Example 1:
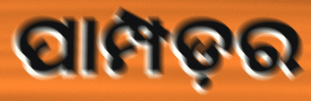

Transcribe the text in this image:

ପାମ୍ପଡ଼ର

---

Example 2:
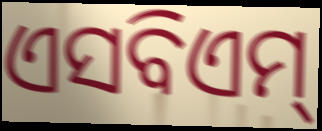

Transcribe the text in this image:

ଏସବିଏମ୍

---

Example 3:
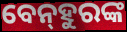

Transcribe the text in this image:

ବେନ୍‍ହୁରଙ୍କ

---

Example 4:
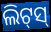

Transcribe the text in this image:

ଲିଟ୍‌ସ୍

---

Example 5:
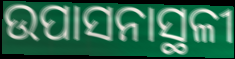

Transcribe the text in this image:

ଉପାସନାସ୍ଥଳୀ